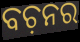
ବଚ଼ନର